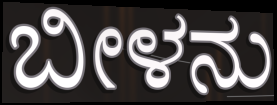
ಬೀಳನು